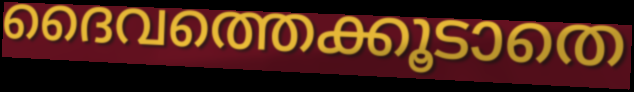
ദൈവത്തെക്കൂടാതെ